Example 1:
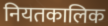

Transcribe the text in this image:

नियतकालिक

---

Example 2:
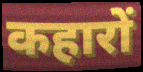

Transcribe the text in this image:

कहारों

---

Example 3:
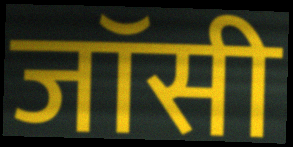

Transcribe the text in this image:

जॉसी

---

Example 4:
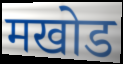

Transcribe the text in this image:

मखोड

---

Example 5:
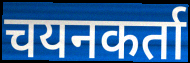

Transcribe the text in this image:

चयनकर्ता